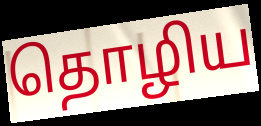
தொழிய